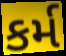
કર્મ